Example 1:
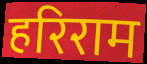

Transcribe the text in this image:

हरिराम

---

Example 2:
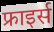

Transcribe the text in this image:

फ्राइर्स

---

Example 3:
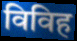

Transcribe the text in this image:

विविह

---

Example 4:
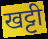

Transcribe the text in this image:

खट्टी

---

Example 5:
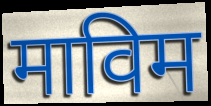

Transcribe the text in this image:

माविम